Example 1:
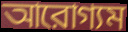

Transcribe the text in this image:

আরোগ্যম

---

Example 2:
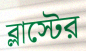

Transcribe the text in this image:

ব্লাস্টের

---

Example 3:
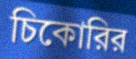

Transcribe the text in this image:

চিকোরির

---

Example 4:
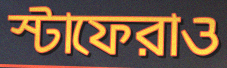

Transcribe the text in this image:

স্টাফেরাও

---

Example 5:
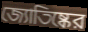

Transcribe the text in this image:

জ্যোতিষ্কের